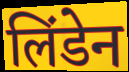
लिंडेन